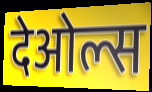
देओल्स